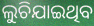
ଲୁଚିଯାଇଥିବ